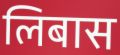
लिबास